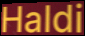
Haldi